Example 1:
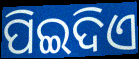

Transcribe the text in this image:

ପିଇଦିଏ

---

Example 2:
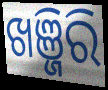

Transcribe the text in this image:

ଖଞ୍ଜିରି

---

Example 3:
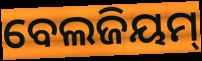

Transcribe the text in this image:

ବେଲଜିୟମ୍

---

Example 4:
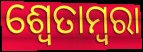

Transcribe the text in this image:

ଶ୍ୱେତାମ୍ବରା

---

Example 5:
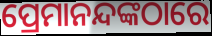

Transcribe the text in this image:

ପ୍ରେମାନନ୍ଦଙ୍କଠାରେ